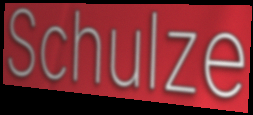
Schulze